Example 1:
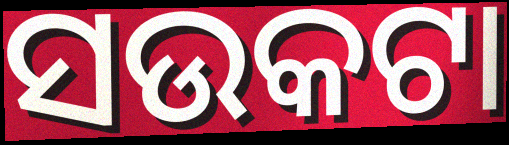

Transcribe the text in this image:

ସଉକଟା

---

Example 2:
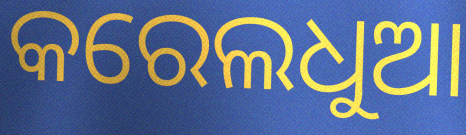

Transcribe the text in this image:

କରେଲଧୁଆ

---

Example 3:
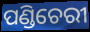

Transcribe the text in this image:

ପଣ୍ଡିଚେରୀ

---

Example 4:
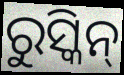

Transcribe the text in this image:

ରୁସ୍କିନ୍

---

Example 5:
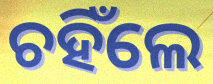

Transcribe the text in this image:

ଚହିଁଲେ